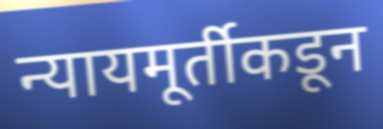
न्यायमूर्तीकडून